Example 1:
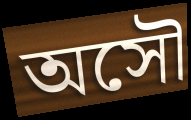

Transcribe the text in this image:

অসৌ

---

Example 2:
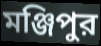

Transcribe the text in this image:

মঞ্জিপুর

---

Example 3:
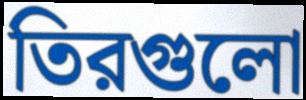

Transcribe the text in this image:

তিরগুলো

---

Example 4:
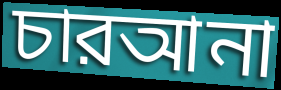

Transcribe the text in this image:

চারআনা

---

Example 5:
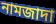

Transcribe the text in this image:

নামজাদা